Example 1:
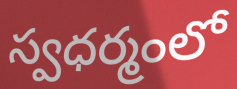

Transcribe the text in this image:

స్వధర్మంలో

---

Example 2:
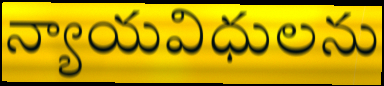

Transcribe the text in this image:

న్యాయవిధులను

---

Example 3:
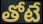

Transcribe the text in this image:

తోటే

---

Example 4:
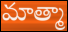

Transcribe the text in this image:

మాత్మా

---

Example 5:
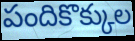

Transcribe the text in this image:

పందికొక్కుల